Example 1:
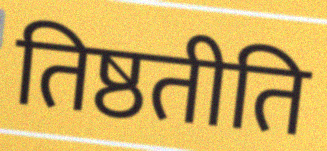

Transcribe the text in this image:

तिष्ठतीति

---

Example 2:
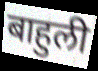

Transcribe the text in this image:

बाहुली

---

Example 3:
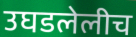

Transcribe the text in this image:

उघडलेलीच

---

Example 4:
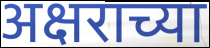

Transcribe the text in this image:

अक्षराच्या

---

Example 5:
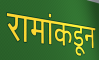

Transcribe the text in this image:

रामांकडून